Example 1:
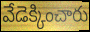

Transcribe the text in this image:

వేడెక్కించారు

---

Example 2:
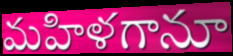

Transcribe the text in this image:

మహిళగానూ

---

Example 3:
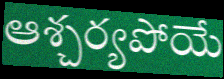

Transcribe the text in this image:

ఆశ్చర్యపోయే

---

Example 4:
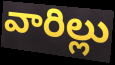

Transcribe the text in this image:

వారిల్లు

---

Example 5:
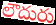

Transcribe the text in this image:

లౌదురు